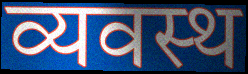
व्यवस्थ